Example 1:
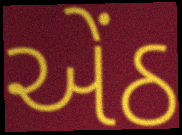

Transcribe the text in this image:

એંઠ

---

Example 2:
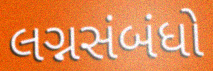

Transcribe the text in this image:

લગ્નસંબંધો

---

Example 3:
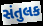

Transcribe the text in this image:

સંતુલક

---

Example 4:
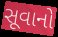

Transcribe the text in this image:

સૂવાનો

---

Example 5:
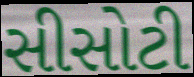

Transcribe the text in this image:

સીસોટી